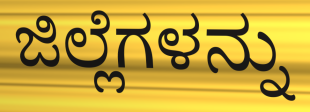
ಜಿಲ್ಲೆಗಳನ್ನು